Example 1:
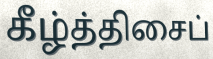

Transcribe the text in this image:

கீழ்த்திசைப்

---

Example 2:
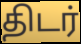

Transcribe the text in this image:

திடர்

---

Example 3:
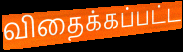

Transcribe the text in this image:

விதைக்கப்பட்ட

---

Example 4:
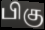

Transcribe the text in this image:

பிகு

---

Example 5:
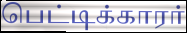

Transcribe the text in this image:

பெட்டிக்காரர்